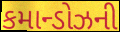
કમાન્ડોઝની